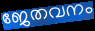
ജേതവനം